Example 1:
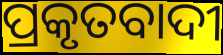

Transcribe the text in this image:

ପ୍ରକୃତବାଦୀ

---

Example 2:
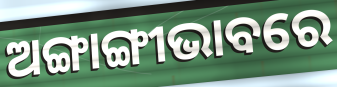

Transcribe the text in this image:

ଅଙ୍ଗାଙ୍ଗୀଭାବରେ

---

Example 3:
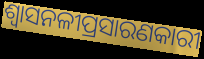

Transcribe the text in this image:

ଶ୍ୱାସନଳୀପ୍ରସାରଣକାରୀ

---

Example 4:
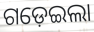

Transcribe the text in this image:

ଗଡ଼େଇଲା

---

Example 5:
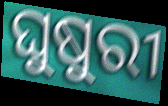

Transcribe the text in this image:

ଘୁଷୁରୀ